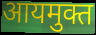
आयमुक्त